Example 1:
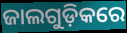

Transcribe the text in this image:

ଜାଲଗୁଡ଼ିକରେ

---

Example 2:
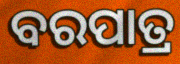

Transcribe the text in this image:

ବରପାତ୍ର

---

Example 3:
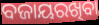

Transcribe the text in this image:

ବଜାୟରଖିବା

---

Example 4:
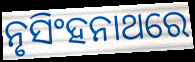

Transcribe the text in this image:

ନୃସିଂହନାଥରେ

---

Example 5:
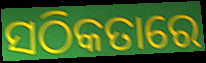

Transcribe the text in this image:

ସଠିକତାରେ